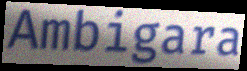
Ambigara